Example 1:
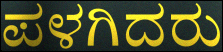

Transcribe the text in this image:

ಪಳಗಿದರು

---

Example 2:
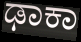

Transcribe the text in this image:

ಢಾಕಾ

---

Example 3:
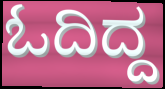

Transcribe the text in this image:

ಓದಿದ್ದ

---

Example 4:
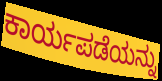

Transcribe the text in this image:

ಕಾರ್ಯಪಡೆಯನ್ನು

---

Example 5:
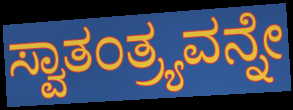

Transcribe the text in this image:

ಸ್ವಾತಂತ್ರ್ಯವನ್ನೇ